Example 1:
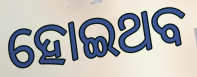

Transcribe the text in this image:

ହୋଇଥବ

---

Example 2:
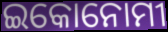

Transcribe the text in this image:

ଇକୋନୋମୀ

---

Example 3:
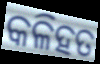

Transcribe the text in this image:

କଳିହତ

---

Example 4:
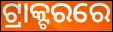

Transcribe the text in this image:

ଟ୍ରାକ୍ଟରରେ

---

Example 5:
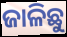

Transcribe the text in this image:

ଜାଳିଛୁ